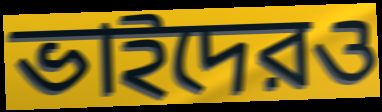
ভাইদেরও